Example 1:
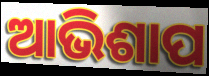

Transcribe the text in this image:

ଆଭିଶାପ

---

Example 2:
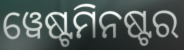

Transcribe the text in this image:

ୱେଷ୍ଟମିନଷ୍ଟର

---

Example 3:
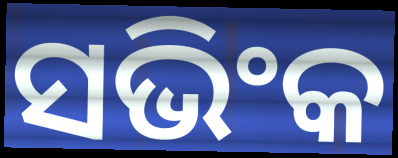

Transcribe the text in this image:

ସଭିଂକ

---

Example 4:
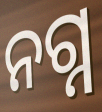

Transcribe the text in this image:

ନଗ୍ନ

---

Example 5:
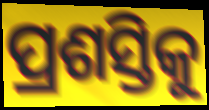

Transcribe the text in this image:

ପ୍ରଶସ୍ତିକୁ